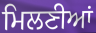
ਮਿਲਣੀਆਂ